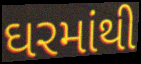
ઘરમાંથી